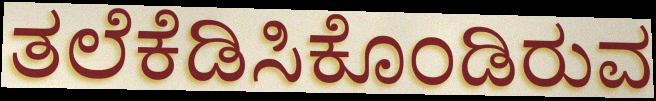
ತಲೆಕೆಡಿಸಿಕೊಂಡಿರುವ